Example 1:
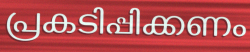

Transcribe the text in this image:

പ്രകടിപ്പിക്കണം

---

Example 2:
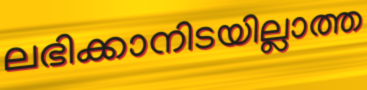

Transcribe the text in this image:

ലഭിക്കാനിടയില്ലാത്ത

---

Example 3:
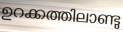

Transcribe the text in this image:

ഉറക്കത്തിലാണ്ടു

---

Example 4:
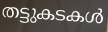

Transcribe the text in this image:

തട്ടുകടകൾ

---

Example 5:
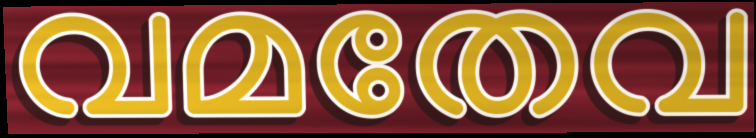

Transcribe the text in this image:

വമതേവ